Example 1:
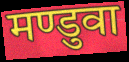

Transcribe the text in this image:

मण्डुवा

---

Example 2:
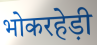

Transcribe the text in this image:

भोकरहेड़ी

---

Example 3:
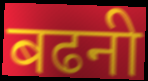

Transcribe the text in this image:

बढनी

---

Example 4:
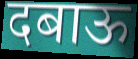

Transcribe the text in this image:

दबाऊ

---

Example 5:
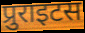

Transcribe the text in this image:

प्रुराइटस